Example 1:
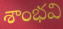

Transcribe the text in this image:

శాంభవి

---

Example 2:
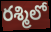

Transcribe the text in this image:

రశ్మిలో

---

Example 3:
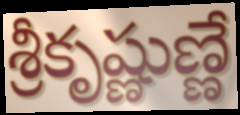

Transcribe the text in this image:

శ్రీకృష్ణుణ్ణే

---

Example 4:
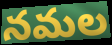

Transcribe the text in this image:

నమల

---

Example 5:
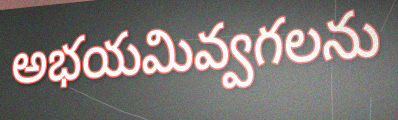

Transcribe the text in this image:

అభయమివ్వగలను